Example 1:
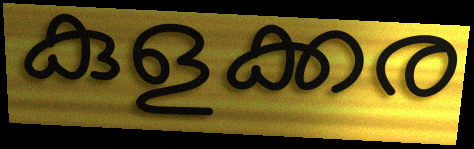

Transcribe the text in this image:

കുളക്കര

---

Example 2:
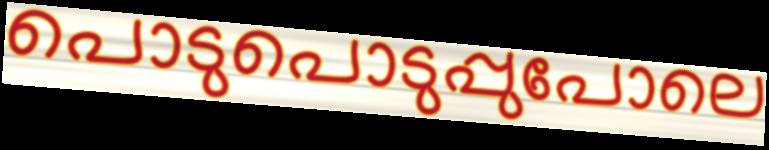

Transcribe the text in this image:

പൊടുപൊടുപ്പുപോലെ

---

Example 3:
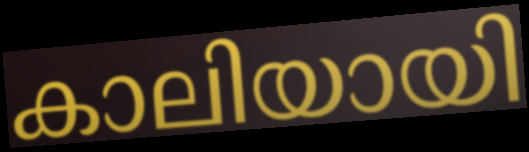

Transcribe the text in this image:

കാലിയായി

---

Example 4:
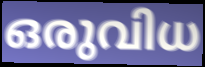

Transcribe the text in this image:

ഒരുവിധ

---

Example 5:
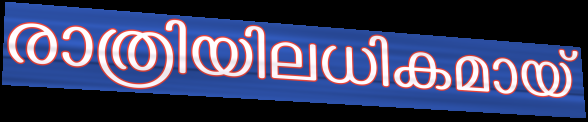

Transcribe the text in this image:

രാത്രിയിലധികമായ്